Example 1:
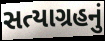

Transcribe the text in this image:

સત્યાગ્રહનું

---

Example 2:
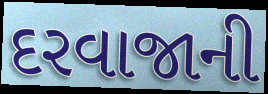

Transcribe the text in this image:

દરવાજાની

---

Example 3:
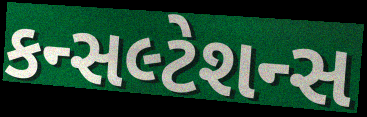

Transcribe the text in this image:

કન્સલ્ટેશન્સ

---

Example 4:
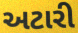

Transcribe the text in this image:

અટારી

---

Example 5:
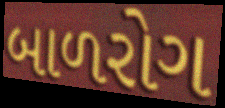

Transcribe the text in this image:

બાળરોગ